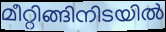
മീറ്റിങ്ങിനിടയിൽ